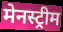
मेनस्ट्रीम